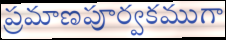
ప్రమాణపూర్వకముగా